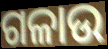
ଗଳାଉ